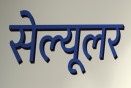
सेल्यूलर